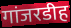
गांजरडीह